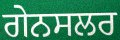
ਗੇਨਸਲਰ